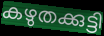
കഴുതക്കുട്ടി